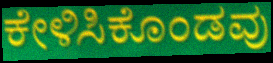
ಕೇಳಿಸಿಕೊಂಡವು